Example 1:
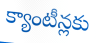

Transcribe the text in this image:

క్యాంటీన్లకు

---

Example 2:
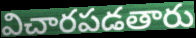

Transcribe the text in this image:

విచారపడతారు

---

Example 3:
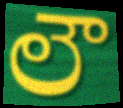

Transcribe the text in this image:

లౌ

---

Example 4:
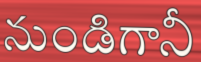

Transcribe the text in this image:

నుండిగానీ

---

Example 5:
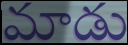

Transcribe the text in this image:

మాడు